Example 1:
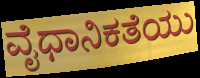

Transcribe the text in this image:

ವೈಧಾನಿಕತೆಯು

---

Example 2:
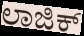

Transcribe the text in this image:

ಲಾಜಿಕ್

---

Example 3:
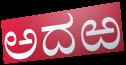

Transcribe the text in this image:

ಅದಱ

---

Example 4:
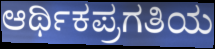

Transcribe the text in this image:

ಆರ್ಥಿಕಪ್ರಗತಿಯ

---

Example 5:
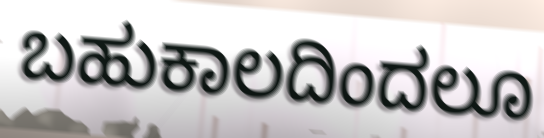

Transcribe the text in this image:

ಬಹುಕಾಲದಿಂದಲೂ